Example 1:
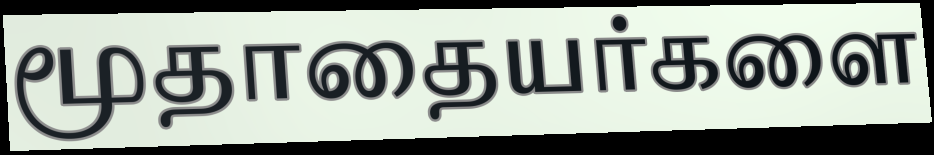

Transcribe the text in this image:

மூதாதையர்களை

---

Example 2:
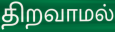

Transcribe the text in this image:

திறவாமல்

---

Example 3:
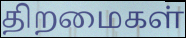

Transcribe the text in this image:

திறமைகள்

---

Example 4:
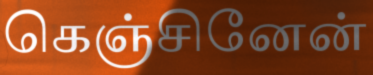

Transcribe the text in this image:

கெஞ்சினேன்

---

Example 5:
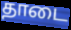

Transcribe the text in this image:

தாடை